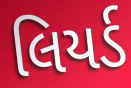
લિયર્ડ